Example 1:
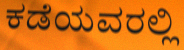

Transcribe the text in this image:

ಕಡೆಯವರಲ್ಲಿ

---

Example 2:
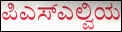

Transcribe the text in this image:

ಪಿಎಸ್ಎಲ್ವಿಯ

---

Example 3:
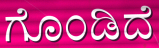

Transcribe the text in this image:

ಗೊಂಡಿದೆ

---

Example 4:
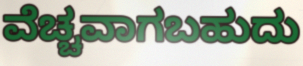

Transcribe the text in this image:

ವೆಚ್ಚವಾಗಬಹುದು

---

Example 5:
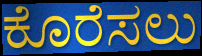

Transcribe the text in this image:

ಕೊರೆಸಲು